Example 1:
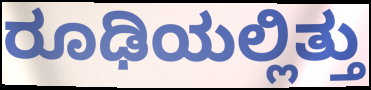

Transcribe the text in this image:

ರೂಢಿಯಲ್ಲಿತ್ತು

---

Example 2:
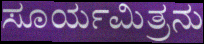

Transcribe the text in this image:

ಸೂರ್ಯಮಿತ್ರನು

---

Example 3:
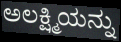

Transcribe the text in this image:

ಅಲಕ್ಷ್ಮಿಯನ್ನು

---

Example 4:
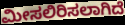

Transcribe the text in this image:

ಮೀಸಲಿರಿಸಲಾಗಿದೆ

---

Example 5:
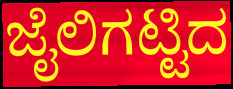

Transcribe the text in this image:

ಜೈಲಿಗಟ್ಟಿದ